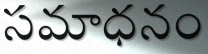
సమాధనం